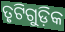
ତୃଟିଗୁଡ଼ିକ